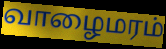
வாழைமரம்